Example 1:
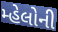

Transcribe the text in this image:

મ્હેલોની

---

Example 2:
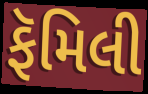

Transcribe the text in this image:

ફૅમિલી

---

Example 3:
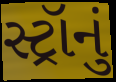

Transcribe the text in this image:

સ્ટ્રૉનું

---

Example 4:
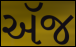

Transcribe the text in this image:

ઍજ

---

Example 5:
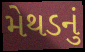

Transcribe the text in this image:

મેથડનું